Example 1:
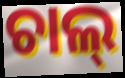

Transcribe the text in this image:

ଚାଲ୍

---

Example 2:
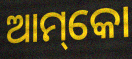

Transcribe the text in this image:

ଆମ୍‌କୋ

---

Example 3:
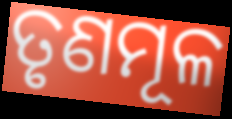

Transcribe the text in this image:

ତୃଣମୂଳ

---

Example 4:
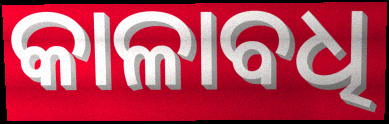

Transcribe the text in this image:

କାଳାବଧି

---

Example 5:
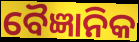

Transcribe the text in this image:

ବୈଜ୍ଞାନିକ